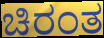
ಚಿರಂತ